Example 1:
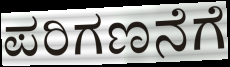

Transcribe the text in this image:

ಪರಿಗಣನೆಗೆ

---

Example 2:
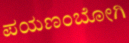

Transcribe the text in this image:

ಪಯಣಂಬೋಗಿ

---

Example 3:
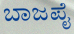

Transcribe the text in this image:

ಬಾಜಪೈ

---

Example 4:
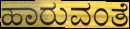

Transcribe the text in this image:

ಹಾರುವಂತೆ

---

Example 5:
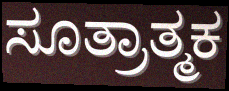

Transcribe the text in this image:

ಸೂತ್ರಾತ್ಮಕ